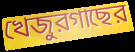
খেজুরগাছের